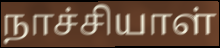
நாச்சியாள்